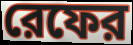
রেফের